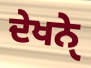
ਦੇਖਨੑੇ